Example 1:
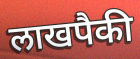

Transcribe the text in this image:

लाखपैकी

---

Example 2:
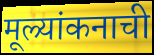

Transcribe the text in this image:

मूल्यांकनाची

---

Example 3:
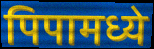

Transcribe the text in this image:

पिपामध्ये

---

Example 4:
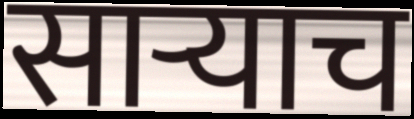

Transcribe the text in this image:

साऱ्याच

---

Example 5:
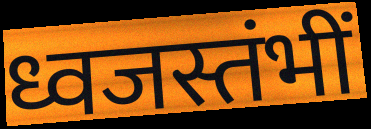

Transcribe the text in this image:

ध्वजस्तंभीं